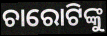
ଚାରୋଟିଙ୍କୁ